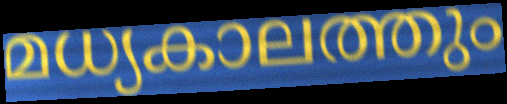
മധ്യകാലത്തും